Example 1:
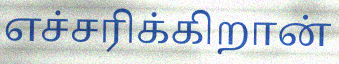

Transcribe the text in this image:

எச்சரிக்கிறான்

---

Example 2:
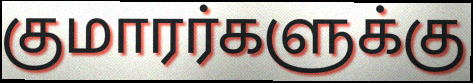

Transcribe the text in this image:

குமாரர்களுக்கு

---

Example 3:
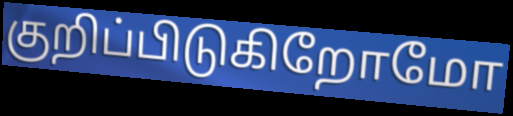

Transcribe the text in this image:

குறிப்பிடுகிறோமோ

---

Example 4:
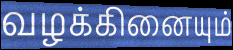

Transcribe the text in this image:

வழக்கினையும்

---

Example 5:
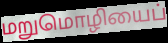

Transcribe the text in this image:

மறுமொழியைப்